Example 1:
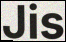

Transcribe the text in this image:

Jis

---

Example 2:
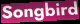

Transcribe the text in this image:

Songbird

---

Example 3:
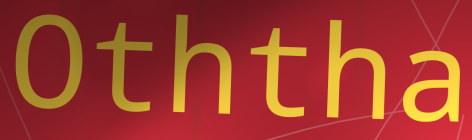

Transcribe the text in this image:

Oththa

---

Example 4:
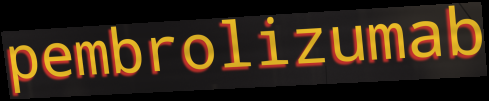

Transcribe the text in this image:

pembrolizumab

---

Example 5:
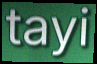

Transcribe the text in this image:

tayi